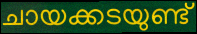
ചായക്കടയുണ്ട്